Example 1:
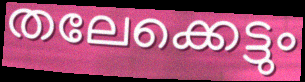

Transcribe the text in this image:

തലേക്കെട്ടും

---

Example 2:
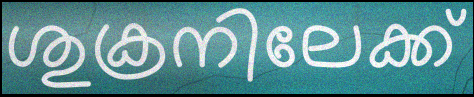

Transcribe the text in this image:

ശുക്രനിലേക്ക്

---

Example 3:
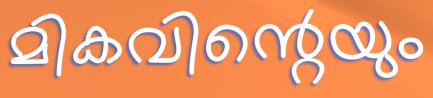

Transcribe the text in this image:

മികവിന്റെയും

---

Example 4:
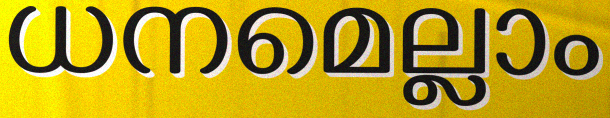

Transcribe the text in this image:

ധനമെല്ലാം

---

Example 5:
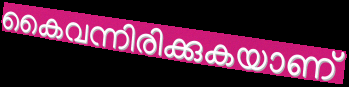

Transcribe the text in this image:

കൈവന്നിരിക്കുകയാണ്